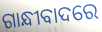
ଗାନ୍ଧୀବାଦରେ